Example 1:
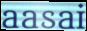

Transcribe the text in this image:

aasai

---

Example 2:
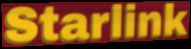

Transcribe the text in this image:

Starlink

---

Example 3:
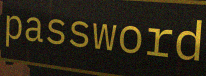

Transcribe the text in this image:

password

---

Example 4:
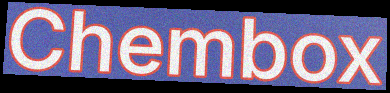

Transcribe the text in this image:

Chembox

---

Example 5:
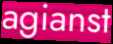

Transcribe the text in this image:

agianst